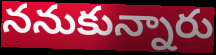
ననుకున్నారు